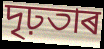
দৃঢ়তাৰ